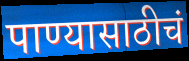
पाण्यासाठीचं